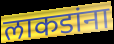
लाकडांना